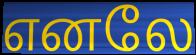
எனலே